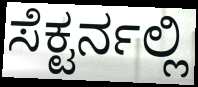
ಸೆಕ್ಟರ್ನಲ್ಲಿ